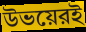
উভয়েরই